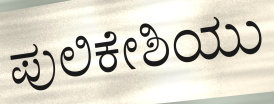
ಪುಲಿಕೇಶಿಯು